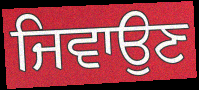
ਜਿਵਾਉਣ